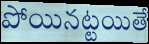
పోయినట్టయితే